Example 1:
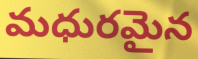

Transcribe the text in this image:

మధురమైన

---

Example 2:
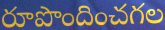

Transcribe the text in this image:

రూపొందించగల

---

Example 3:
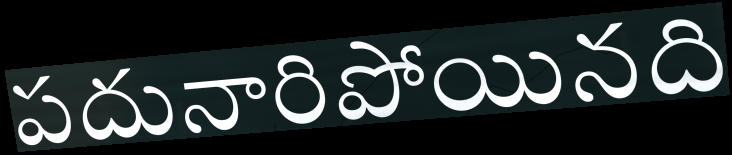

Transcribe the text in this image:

పదునారిపోయినది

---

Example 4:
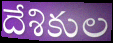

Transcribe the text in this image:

దేశికుల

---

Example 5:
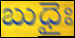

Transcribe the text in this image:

బుధైః